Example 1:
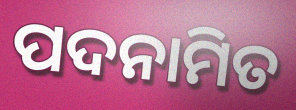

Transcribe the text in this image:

ପଦନାମିତ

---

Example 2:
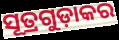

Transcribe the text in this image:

ସୂତ୍ରଗୁଡ଼ାକର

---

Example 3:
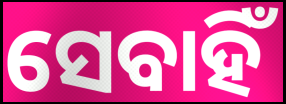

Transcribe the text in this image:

ସେବାହିଁ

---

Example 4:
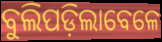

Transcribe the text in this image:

ବୁଲିପଡ଼ିଲାବେଳେ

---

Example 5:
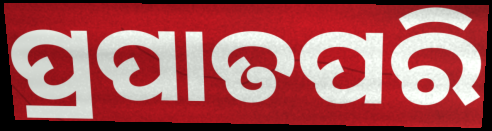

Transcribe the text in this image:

ପ୍ରପାତପରି